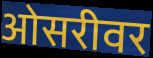
ओसरीवर